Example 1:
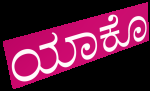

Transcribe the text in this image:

ಯಾಕೊ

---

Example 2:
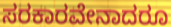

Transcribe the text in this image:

ಸರಕಾರವೇನಾದರೂ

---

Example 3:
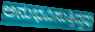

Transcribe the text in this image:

ಅನುಭವಿಸುತ್ತಿದ್ದವು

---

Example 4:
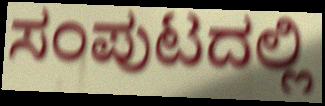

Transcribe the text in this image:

ಸಂಪುಟದಲ್ಲಿ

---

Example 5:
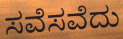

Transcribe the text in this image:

ಸವೆಸವೆದು